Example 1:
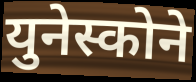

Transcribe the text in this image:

युनेस्कोने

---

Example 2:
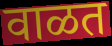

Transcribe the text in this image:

वाळत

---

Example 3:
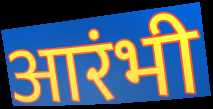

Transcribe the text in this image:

आरंभी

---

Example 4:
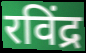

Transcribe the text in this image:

रविंद्र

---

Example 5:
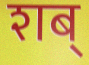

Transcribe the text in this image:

शब्